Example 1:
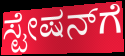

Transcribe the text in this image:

ಸ್ಟೇಷನ್‌ಗೆ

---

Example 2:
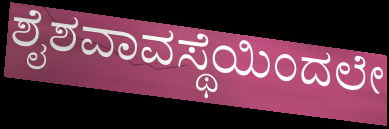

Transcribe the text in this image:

ಶೈಶವಾವಸ್ಥೆಯಿಂದಲೇ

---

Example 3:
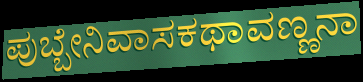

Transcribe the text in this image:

ಪುಬ್ಬೇನಿವಾಸಕಥಾವಣ್ಣನಾ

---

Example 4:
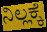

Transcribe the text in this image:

ನಿಲ್ಲಕ್ಕೆ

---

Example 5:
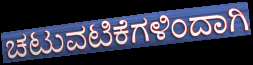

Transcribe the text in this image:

ಚಟುವಟಿಕೆಗಳಿಂದಾಗಿ